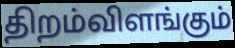
திறம்விளங்கும்